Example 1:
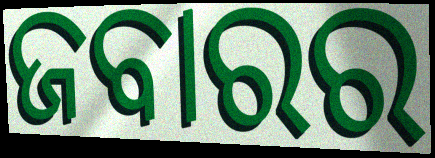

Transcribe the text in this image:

ଜବାରର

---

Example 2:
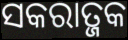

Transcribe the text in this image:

ସକରାତ୍ଜକ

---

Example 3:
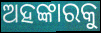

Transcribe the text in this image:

ଅହଙ୍କାରକୁ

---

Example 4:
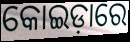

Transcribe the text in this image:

କୋଇଡ଼ାରେ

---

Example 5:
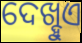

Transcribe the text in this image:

ଦେଖ୍ହୁଏ